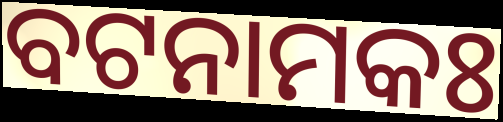
ବଟନାମକଃ